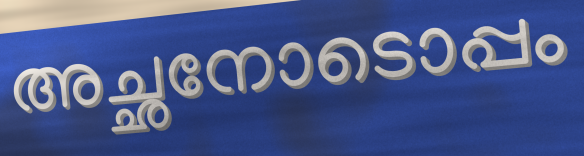
അച്ഛനോടൊപ്പം